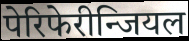
पेरिफेरीन्जियल